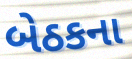
બેઠકના